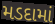
મડદામાં